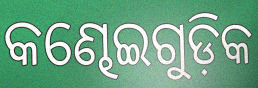
କଣ୍ଢେଇଗୁଡ଼ିକ